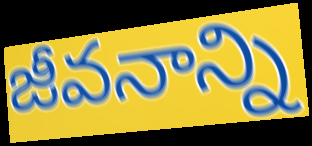
జీవనాన్ని